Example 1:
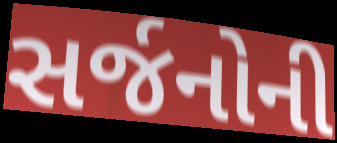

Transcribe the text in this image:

સર્જનોની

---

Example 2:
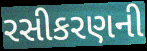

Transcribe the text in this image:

રસીકરણની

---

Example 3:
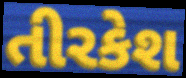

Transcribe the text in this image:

તીરકેશ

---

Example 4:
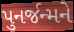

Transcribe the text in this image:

પુનર્જન્મને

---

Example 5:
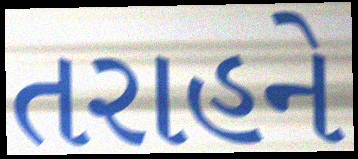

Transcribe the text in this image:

તરાહને